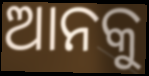
ଆନକୁ